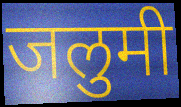
जलुमी